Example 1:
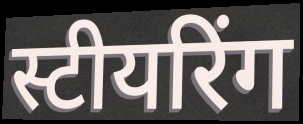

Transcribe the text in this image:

स्टीयरिंग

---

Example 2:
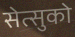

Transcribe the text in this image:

सेत्सुको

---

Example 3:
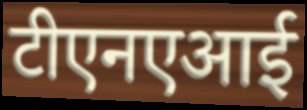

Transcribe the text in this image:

टीएनएआई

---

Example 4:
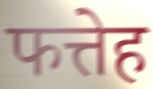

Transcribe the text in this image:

फत्तेह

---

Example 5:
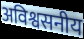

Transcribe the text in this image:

अविश्वसनीय